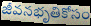
జీవనభృతికోసం